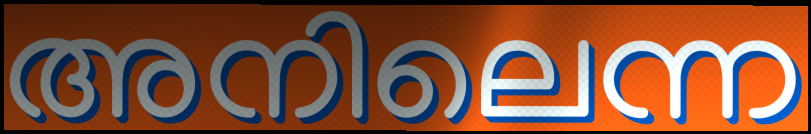
അനിലെന്ന